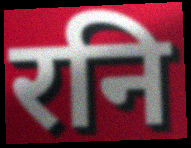
रनि